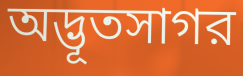
অদ্ভূতসাগর